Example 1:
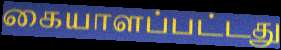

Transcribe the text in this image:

கையாளப்பட்டது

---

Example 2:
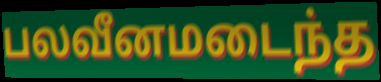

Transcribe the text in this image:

பலவீனமடைந்த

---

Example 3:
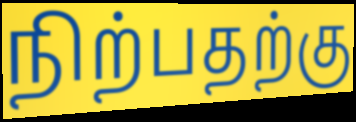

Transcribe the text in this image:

நிற்பதற்கு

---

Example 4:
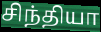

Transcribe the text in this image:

சிந்தியா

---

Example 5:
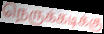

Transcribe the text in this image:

நெருக்கடிக்கு